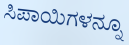
ಸಿಪಾಯಿಗಳನ್ನೂ